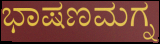
ಭಾಷಣಮಗ್ನ